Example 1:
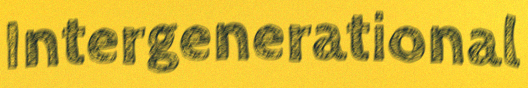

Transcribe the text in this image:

Intergenerational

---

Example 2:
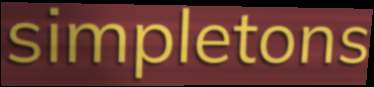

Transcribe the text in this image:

simpletons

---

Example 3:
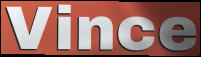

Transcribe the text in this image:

Vince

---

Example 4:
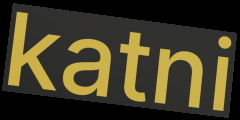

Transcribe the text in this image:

katni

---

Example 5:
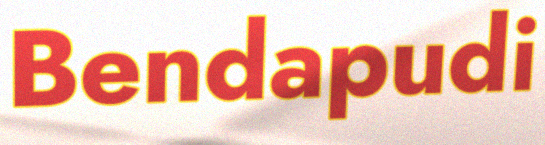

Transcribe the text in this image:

Bendapudi